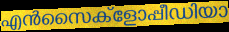
എൻസൈക്ളോപ്പീഡിയാ